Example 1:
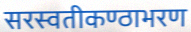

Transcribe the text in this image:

सरस्वतीकण्ठाभरण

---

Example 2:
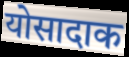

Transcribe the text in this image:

योसादाक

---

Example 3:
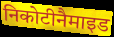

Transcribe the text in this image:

निकोटीनैमाइड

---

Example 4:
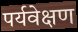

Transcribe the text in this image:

पर्यवेक्षण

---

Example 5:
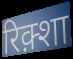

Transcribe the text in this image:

रिक़्शा